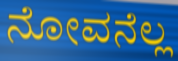
ನೋವನೆಲ್ಲ